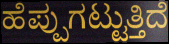
ಹೆಪ್ಪುಗಟ್ಟುತ್ತಿದೆ